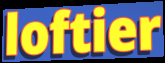
loftier